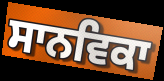
ਸਾਨਵਿਕਾ